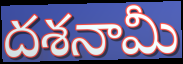
దశనామీ